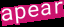
apear